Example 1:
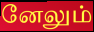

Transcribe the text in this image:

னேலும்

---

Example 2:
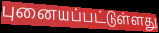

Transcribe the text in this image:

புனையப்பட்டுள்ளது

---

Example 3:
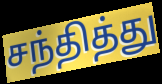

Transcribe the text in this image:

சந்தித்து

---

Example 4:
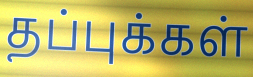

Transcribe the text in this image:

தப்புக்கள்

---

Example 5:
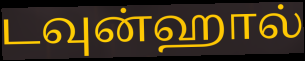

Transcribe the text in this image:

டவுன்ஹால்